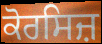
ਕੋਰਸਿਜ਼